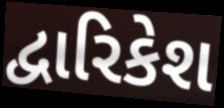
દ્વારિકેશ